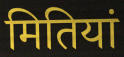
मितियां